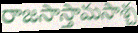
రాజసాస్తామసాశ్చ